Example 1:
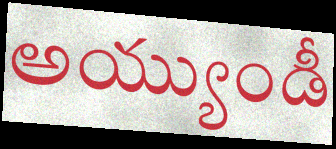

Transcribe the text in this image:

అయ్యుండీ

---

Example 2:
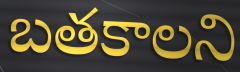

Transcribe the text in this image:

బతకాలని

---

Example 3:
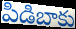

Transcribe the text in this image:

పిడిబాకు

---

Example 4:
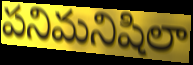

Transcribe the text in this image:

పనిమనిషిలా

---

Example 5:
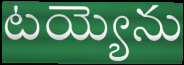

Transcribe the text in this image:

టయ్యెను